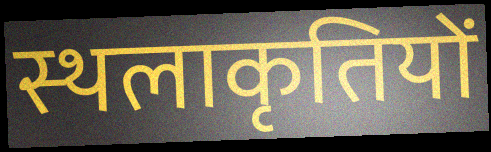
स्थलाकृतियों